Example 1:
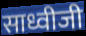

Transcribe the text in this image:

साध्वीजी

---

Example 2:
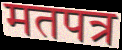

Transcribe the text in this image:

मतपत्र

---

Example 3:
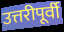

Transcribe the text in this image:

उत्तरीपूर्वी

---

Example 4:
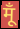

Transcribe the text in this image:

मूँ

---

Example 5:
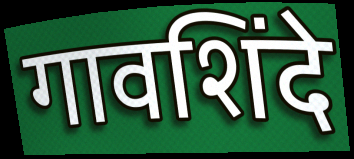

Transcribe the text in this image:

गावशिंदे